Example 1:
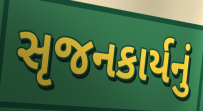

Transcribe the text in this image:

સૃજનકાર્યનું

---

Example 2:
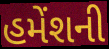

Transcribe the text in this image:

હમેંશની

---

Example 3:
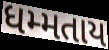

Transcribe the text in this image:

ધમ્મતાય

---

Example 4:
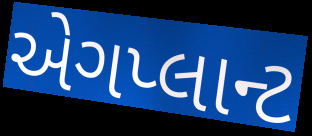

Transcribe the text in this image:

એગપ્લાન્ટ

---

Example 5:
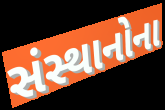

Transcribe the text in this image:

સંસ્થાનોના